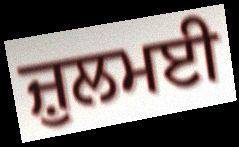
ਜ਼ੁਲਮਈ